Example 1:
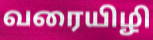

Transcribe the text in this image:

வரையிழி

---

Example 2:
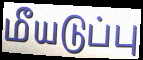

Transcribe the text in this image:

மீயடுப்பு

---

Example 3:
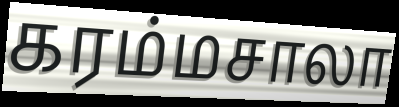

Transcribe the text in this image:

கரம்மசாலா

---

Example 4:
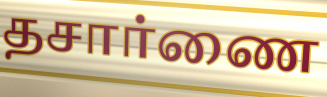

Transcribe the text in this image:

தசார்ணை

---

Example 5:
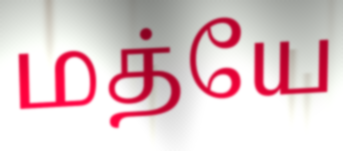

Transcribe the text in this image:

மத்யே